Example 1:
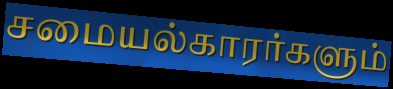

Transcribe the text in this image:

சமையல்காரர்களும்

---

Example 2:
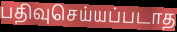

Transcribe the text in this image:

பதிவுசெய்யப்படாத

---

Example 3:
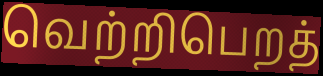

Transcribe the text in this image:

வெற்றிபெறத்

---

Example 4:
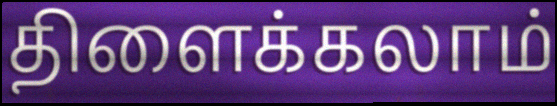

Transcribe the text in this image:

திளைக்கலாம்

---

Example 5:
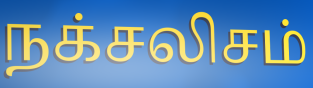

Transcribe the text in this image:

நக்சலிசம்